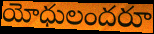
యోధులందరూ